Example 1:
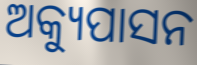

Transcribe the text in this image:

ଅକ୍ୟୁପାସନ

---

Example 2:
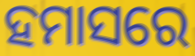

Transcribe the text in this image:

ହମାସରେ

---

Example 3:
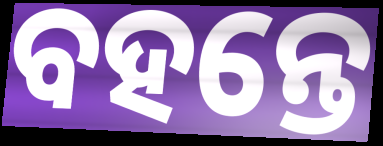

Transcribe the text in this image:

ବହନ୍ତେ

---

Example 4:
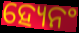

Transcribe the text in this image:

ହ୍ୟେନଂ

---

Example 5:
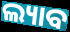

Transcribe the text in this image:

ଲ୍ୟାବ